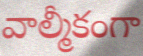
వాల్మీకంగా